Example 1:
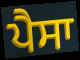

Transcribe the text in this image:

ਪੈਸਾ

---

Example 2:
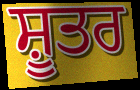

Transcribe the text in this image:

ਸ਼ੂਤਰ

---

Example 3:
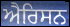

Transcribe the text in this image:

ਐਰਿਸਨ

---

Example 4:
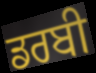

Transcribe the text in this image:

ਡਰਬੀ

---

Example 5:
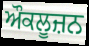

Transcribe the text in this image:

ਔਕਲੂਜ਼ਨ